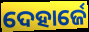
ଦେହାର୍ଜେ